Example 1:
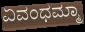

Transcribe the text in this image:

ಏವಂಧಮ್ಮಾ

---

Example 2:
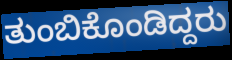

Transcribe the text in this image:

ತುಂಬಿಕೊಂಡಿದ್ದರು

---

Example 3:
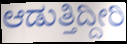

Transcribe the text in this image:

ಆಡುತ್ತಿದ್ದೀರಿ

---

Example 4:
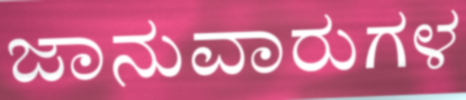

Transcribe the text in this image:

ಜಾನುವಾರುಗಳ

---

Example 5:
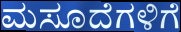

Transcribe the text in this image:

ಮಸೂದೆಗಳಿಗೆ